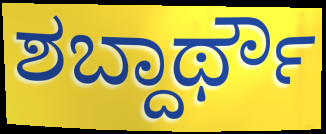
ಶಬ್ದಾರ್ಥೌ